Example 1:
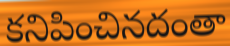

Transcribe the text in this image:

కనిపించినదంతా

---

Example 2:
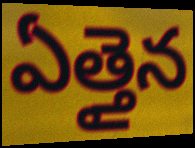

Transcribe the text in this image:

ఏత్తైన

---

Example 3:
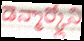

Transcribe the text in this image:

డెన్మార్క్లోని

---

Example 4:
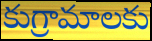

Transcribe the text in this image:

కుగ్రామాలకు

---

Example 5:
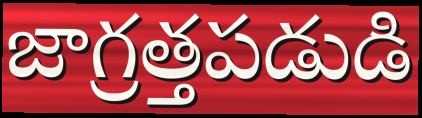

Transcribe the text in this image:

జాగ్రత్తపడుడి